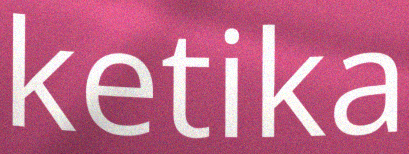
ketika